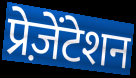
प्रेज़ेंटेशन